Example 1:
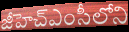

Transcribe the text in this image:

జీహెచ్ఎంసీలోని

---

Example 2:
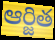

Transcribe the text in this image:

ఆర్జిత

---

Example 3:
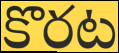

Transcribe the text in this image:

కొరట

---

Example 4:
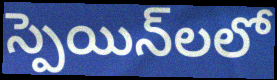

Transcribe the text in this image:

స్పెయిన్‌లలో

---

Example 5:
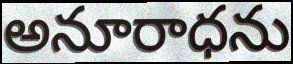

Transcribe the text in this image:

అనూరాధను